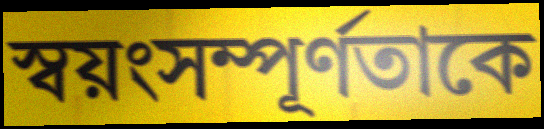
স্বয়ংসম্পূর্ণতাকে